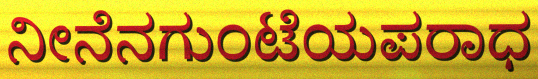
ನೀನೆನಗುಂಟೆಯಪರಾಧ